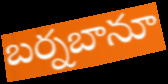
బర్నబానూ